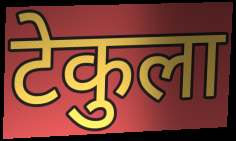
टेकुला